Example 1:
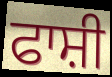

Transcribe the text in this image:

ਫਾਸ਼ੀ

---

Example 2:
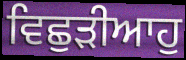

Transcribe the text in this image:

ਵਿਛੁੜੀਆਹੁ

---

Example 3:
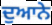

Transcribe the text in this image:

ਦੁਆਨੇ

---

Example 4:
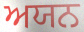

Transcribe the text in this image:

ਅਯਨ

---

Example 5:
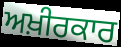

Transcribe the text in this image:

ਅਖ਼ੀਰਕਾਰ